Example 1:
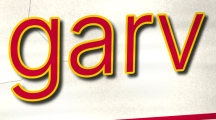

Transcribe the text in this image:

garv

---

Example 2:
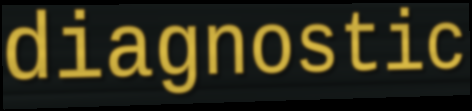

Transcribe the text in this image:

diagnostic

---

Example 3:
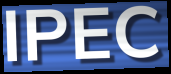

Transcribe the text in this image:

IPEC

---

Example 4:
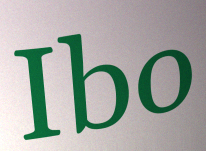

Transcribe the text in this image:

Ibo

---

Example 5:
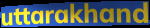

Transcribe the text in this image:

uttarakhand